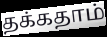
தக்கதாம்